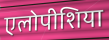
एलोपीशिया